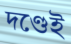
দণ্ডেই